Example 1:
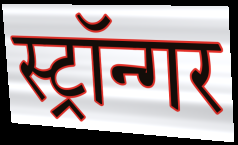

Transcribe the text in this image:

स्ट्रॉन्गर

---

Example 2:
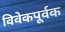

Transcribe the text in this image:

विवेकपूर्वक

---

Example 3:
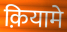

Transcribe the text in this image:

क़ियामे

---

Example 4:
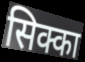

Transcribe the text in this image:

सिक्का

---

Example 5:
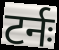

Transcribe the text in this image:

टर्नः